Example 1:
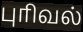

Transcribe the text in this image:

புரிவல்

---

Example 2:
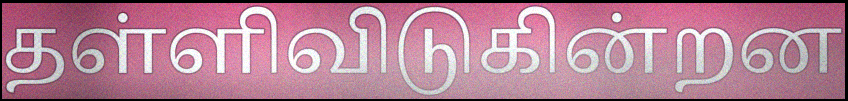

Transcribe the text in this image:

தள்ளிவிடுகின்றன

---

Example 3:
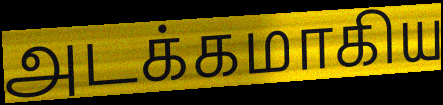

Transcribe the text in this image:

அடக்கமாகிய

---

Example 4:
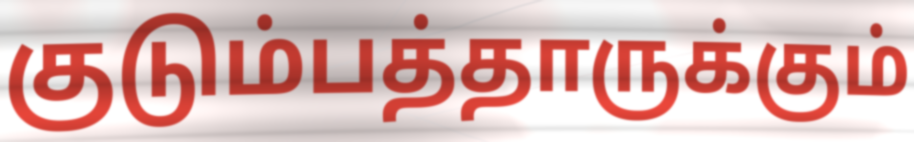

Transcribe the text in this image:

குடும்பத்தாருக்கும்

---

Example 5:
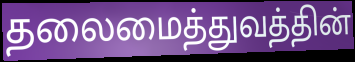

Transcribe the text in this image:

தலைமைத்துவத்தின்